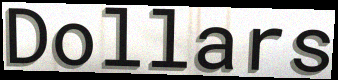
Dollars